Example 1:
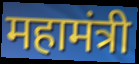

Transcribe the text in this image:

महामंत्री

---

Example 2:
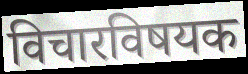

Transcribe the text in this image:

विचारविषयक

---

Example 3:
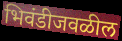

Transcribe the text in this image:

भिवंडीजवळील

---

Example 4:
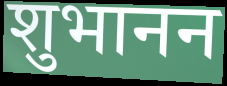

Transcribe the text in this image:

शुभानन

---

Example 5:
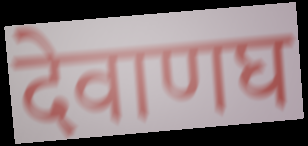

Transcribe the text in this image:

देवाणघ